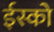
ईस्को